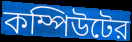
কম্পিউটের